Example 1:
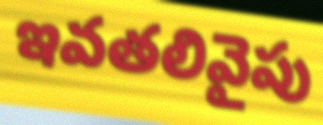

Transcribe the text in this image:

ఇవతలివైపు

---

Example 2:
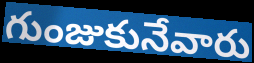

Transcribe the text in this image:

గుంజుకునేవారు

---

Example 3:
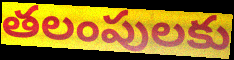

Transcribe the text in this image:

తలంపులకు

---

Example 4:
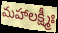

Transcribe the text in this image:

మహాలక్ష్మీః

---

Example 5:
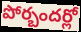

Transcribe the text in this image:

పోర్బందర్లో